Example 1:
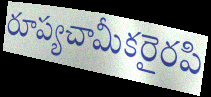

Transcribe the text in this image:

రూప్యచామీకరైరపి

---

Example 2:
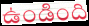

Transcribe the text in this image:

ఉండింది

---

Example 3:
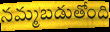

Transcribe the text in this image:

నమ్మబడుతోంది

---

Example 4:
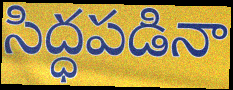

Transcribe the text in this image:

సిద్ధపడినా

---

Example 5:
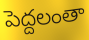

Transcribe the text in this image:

పెద్దలంతా